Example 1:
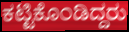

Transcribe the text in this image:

ಕಟ್ಟಿಕೊಂಡಿದ್ದರು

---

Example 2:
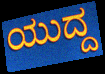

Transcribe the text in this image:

ಯುದ್ದ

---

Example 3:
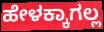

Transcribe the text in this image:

ಹೇಳಕ್ಕಾಗಲ್ಲ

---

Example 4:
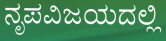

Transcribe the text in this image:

ನೃಪವಿಜಯದಲ್ಲಿ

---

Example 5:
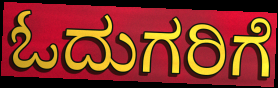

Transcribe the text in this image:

ಓದುಗರಿಗೆ